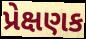
પ્રેક્ષણક